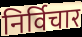
निर्विचार